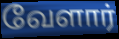
வேளார்